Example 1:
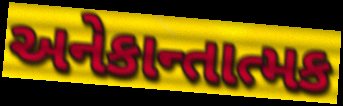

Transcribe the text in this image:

અનેકાન્તાત્મક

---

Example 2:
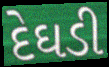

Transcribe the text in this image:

દેઘડી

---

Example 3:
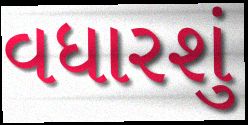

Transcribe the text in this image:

વધારશું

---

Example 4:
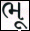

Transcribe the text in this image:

ભૂ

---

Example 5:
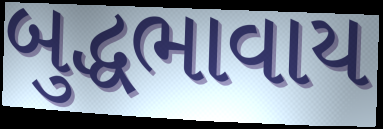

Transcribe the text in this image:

બુદ્ધભાવાય